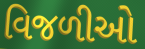
વિજળીઓ